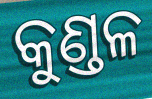
କୁଣ୍ଡଳ